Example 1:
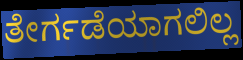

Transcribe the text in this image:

ತೇರ್ಗಡೆಯಾಗಲಿಲ್ಲ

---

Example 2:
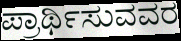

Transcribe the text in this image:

ಪ್ರಾರ್ಥಿಸುವವರ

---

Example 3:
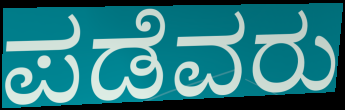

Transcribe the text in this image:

ಪಡೆವರು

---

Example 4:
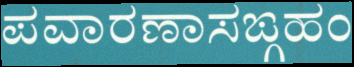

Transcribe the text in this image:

ಪವಾರಣಾಸಙ್ಗಹಂ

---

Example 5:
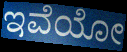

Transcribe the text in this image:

ಇವೆಯೋ